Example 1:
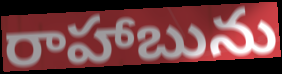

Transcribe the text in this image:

రాహాబును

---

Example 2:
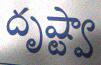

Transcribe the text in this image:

దృష్ట్వా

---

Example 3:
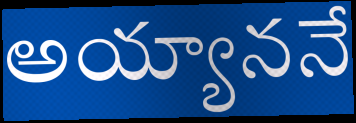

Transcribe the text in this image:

అయ్యాననే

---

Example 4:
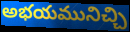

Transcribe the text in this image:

అభయమునిచ్చి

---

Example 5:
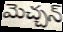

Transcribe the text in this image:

మెచ్చన్